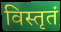
विस्तृतं